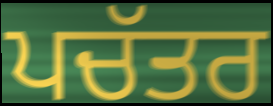
ਪਚੱਤਰ